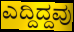
ಎದ್ದಿದ್ದವು